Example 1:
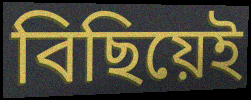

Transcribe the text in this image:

বিছিয়েই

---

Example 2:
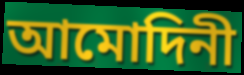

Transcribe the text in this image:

আমোদিনী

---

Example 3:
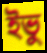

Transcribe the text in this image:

ইভু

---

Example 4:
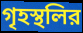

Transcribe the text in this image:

গৃহস্থলির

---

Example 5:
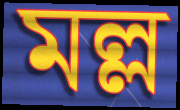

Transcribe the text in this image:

মল্ল